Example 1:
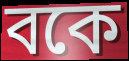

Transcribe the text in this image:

বকে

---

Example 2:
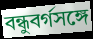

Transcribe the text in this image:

বন্ধুবর্গসঙ্গে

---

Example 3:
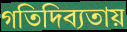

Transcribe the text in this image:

গতিদিব্যতায়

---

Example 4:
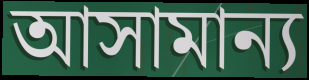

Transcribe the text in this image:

আসামান্য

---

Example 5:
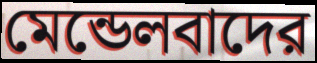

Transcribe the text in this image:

মেন্ডেলবাদের